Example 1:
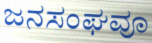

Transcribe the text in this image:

ಜನಸಂಘವೂ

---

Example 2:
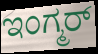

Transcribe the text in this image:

ಇಂಗ್ಮರ್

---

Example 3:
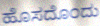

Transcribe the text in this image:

ಹೊಸದೊಂದು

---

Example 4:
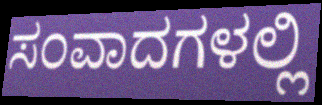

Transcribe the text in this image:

ಸಂವಾದಗಳಲ್ಲಿ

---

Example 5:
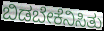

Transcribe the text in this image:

ಬಿಡಬೇಕೆನಿಸಿತು